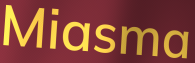
Miasma